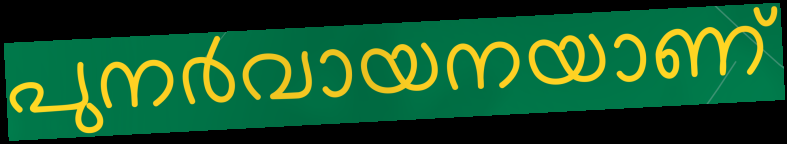
പുനർവായനയാണ്